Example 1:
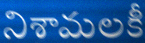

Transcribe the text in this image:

నిశామలకీ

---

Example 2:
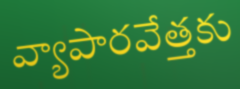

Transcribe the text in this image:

వ్యాపారవేత్తకు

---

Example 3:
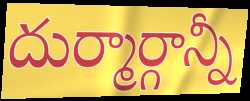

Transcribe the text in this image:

దుర్మార్గాన్నీ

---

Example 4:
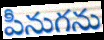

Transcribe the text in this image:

పీనుగను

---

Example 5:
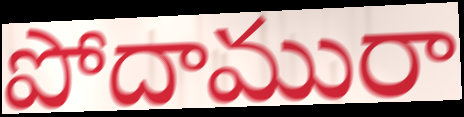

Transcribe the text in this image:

పోదామురా